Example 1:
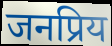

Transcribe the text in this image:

जनप्रिय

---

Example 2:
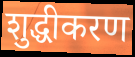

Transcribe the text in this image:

शुद्धीकरण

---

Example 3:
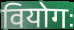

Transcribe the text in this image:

वियोगः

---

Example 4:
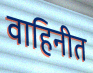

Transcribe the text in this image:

वाहिनीत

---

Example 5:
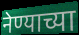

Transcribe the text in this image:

नेण्याच्या